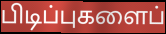
பிடிப்புகளைப்